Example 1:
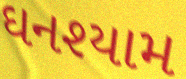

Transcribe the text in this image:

ઘનશ્યામ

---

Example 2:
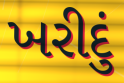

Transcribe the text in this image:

ખરીદું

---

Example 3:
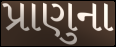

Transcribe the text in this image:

પ્રાણુના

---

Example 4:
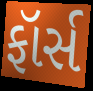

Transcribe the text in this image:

ફૉર્સ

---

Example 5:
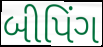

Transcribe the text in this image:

બીપિંગ